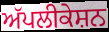
ਅੱਪਲੀਕੇਸ਼ਨ